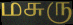
மசுரு